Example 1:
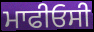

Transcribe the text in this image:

ਮਾਫੀਓਸੀ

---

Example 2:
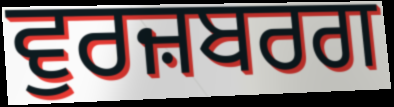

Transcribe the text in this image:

ਵੁਰਜ਼ਬਰਗ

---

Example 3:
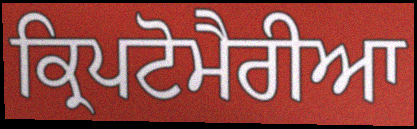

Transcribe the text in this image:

ਕ੍ਰਿਪਟੋਮੈਰੀਆ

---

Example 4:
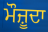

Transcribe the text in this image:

ਮੌਜ਼ੂਦਾ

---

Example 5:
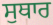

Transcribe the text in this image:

ਸੁਥਾਰ